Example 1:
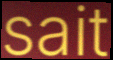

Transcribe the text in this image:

sait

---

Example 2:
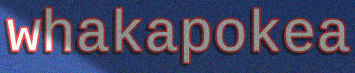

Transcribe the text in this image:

whakapokea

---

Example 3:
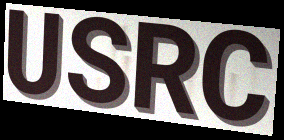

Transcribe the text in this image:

USRC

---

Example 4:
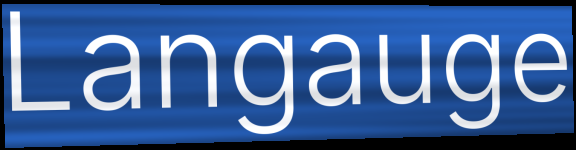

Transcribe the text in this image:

Langauge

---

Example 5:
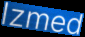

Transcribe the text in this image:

Izmed